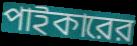
পাইকারের